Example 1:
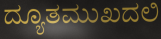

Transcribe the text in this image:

ದ್ಯೂತಮುಖದಲಿ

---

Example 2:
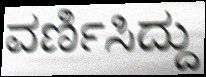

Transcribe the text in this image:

ವರ್ಣಿಸಿದ್ದು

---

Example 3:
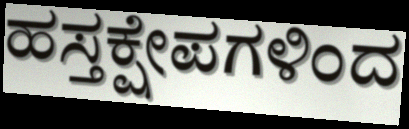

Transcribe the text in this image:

ಹಸ್ತಕ್ಷೇಪಗಳಿಂದ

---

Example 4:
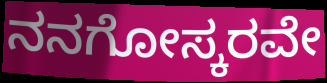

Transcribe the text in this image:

ನನಗೋಸ್ಕರವೇ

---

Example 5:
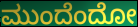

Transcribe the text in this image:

ಮುಂದೆಂದೋ